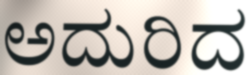
ಅದುರಿದ